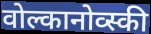
वोल्कानोव्स्की